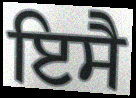
ਇਸੈ